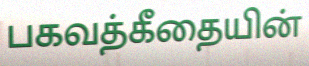
பகவத்கீதையின்